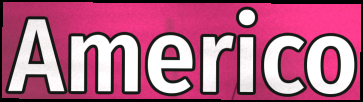
Americo